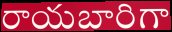
రాయబారిగా